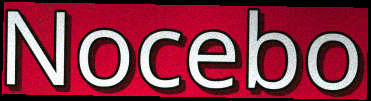
Nocebo